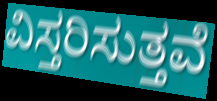
ವಿಸ್ತರಿಸುತ್ತವೆ